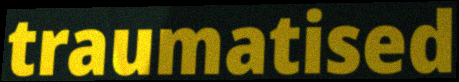
traumatised